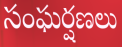
సంఘర్షణలు